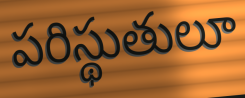
పరిస్థుతులూ